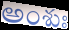
అంశుః